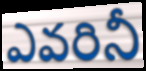
ఎవరినీ